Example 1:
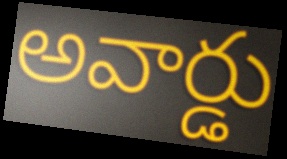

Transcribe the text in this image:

అవార్డు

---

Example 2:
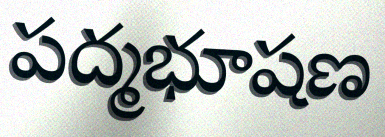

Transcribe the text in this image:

పద్మభూషణ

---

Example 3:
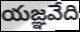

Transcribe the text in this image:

యజ్ఞవేది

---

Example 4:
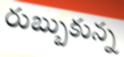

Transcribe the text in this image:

రుబ్బుకున్న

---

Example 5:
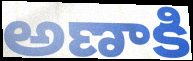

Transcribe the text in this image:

అణాకి